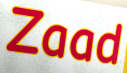
Zaad